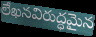
లేఖనవిరుద్ధమైన